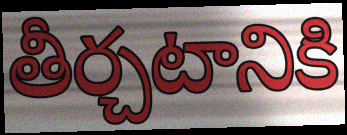
తీర్చటానికి